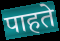
पाहते